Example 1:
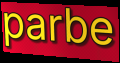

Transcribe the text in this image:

parbe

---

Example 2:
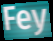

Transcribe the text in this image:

Fey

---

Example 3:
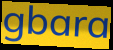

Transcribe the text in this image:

gbara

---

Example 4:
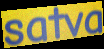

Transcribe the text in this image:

satva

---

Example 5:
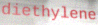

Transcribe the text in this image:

diethylene